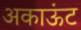
अकाऊंट